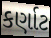
કર્ણાટ